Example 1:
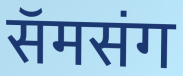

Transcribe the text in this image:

सॅमसंग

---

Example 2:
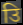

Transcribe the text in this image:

उि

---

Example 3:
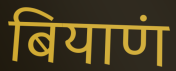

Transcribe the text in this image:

बियाणं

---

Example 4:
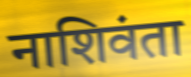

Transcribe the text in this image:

नाशिवंता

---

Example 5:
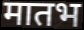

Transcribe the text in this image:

मातभ